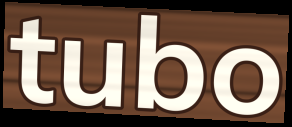
tubo